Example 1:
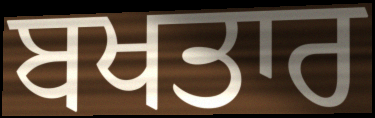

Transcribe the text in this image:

ਬਖਤਾਰ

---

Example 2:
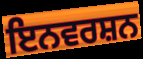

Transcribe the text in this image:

ਇਨਵਰਸ਼ਨ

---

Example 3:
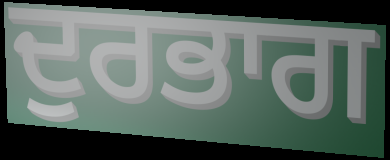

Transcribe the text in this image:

ਦੁਰਭਾਗ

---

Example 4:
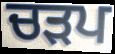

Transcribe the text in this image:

ਚੜਪ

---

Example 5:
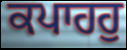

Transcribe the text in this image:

ਕਪਾਹਹੁ